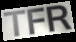
TFR